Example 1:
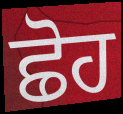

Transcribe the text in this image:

ਛੋਹ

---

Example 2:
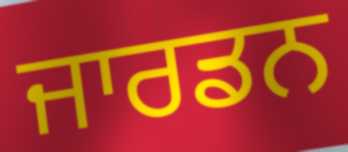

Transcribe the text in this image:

ਜਾਰਡਨ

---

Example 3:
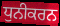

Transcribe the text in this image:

ਧੁਨੀਕਰਨ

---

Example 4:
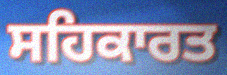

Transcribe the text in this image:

ਸਹਿਕਾਰਤ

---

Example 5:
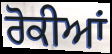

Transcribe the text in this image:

ਰੋਕੀਆਂ